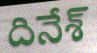
దినేశ్